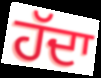
ਹੱਦਾ